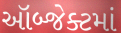
ઑબ્જેક્ટમાં